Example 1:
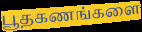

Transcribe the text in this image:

பூதகணங்களை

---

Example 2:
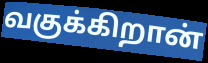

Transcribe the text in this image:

வகுக்கிறான்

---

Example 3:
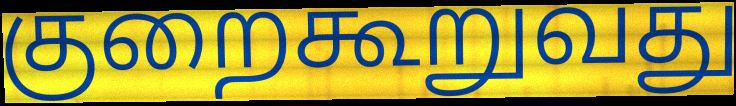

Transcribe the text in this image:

குறைகூறுவது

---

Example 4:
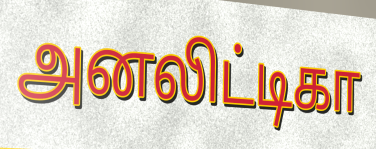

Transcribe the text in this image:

அனலிட்டிகா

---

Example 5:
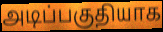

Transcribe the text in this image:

அடிப்பகுதியாக